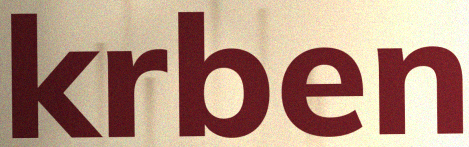
krben